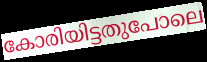
കോരിയിട്ടതുപോലെ